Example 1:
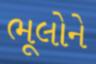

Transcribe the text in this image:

ભૂલોને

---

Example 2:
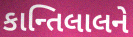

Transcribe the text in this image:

કાન્તિલાલને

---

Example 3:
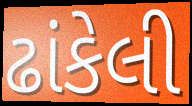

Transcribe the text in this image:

ઢાંકેલી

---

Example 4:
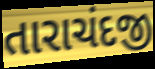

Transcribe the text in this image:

તારાચંદજી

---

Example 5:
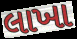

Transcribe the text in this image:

લાખા